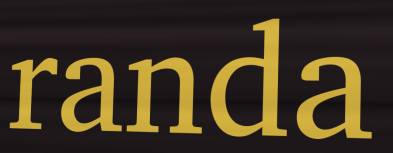
randa